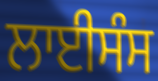
ਲਾਈਸੰਸ